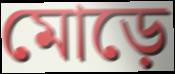
মোড়ে